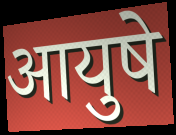
आयुषे